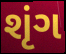
શૃંગ